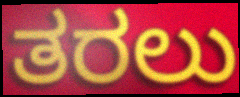
ತರಲು